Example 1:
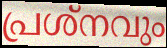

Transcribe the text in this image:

പ്രശ്നവും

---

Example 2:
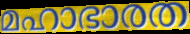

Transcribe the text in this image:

മഹാഭാരത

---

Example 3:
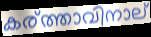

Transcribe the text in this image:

കര്ത്താവിനാല്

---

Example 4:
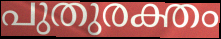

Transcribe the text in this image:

പുതുരക്തം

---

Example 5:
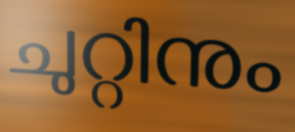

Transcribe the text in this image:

ചുറ്റിനും